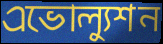
এভোল্যুশন